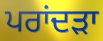
ਪਰਾਂਦੜਾ